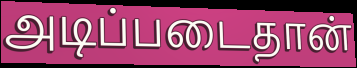
அடிப்படைதான்